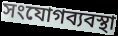
সংযোগব্যবস্থা